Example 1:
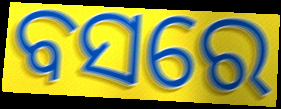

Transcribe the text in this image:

ବସରେ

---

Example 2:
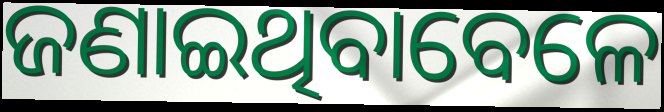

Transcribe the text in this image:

ଜଣାଇଥିବାବେଳେ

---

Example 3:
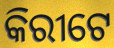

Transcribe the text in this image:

କିରୀଟେ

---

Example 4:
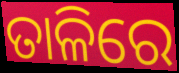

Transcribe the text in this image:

ତାଳିରେ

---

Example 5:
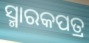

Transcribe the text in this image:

ସ୍ମାରକପତ୍ର